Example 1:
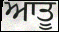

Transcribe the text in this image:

ਆਤੂ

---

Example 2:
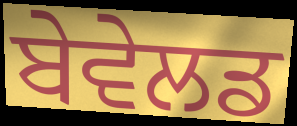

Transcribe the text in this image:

ਬੇਵੇਲਡ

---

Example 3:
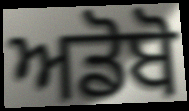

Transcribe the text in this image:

ਅਡੋਬੋ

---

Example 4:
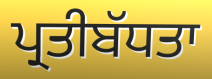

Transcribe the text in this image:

ਪ੍ਰਤੀਬੱਧਤਾ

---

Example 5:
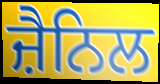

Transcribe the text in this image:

ਜ਼ੈਨਿਲ